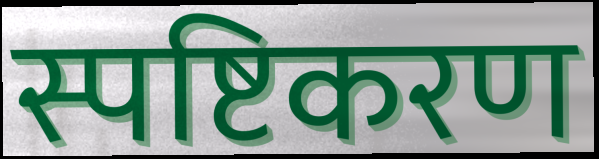
स्पष्टिकरण